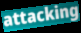
attacking